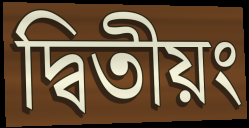
দ্বিতীয়ং